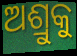
ଅଶ୍ରୁକୁ